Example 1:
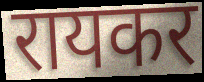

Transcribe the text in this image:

रायकर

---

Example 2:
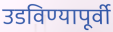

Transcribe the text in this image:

उडविण्यापूर्वी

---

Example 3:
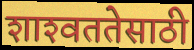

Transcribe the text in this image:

शाश्वततेसाठी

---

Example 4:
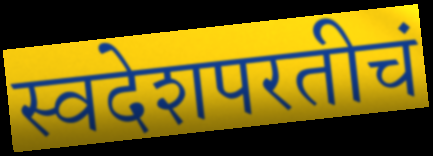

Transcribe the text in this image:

स्वदेशपरतीचं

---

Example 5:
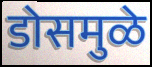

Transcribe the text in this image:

डोसमुळे